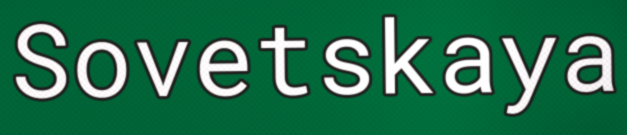
Sovetskaya